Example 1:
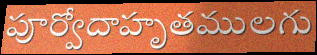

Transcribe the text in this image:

పూర్వోదాహృతములగు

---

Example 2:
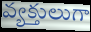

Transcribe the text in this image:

వ్యక్తులుగా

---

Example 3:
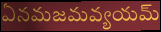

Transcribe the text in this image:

ఏనమజమవ్యయమ్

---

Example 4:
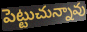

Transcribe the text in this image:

పెట్టుచున్నావు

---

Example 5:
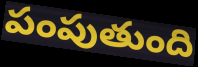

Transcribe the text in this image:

పంపుతుంది